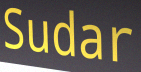
Sudar